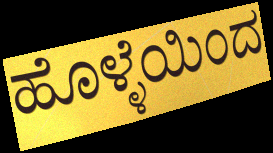
ಹೊಳ್ಳೆಯಿಂದ